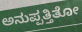
ಅನುಪ್ಪತ್ತಿತೋ